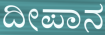
ದೀಪಾನ